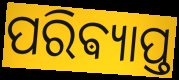
ପରିଵ୍ୟାପ୍ତ